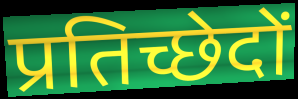
प्रतिच्छेदों